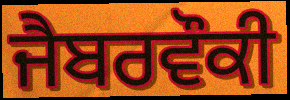
ਜੈਬਰਵੌਕੀ